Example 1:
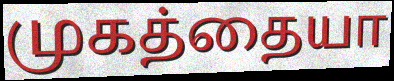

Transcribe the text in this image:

முகத்தையா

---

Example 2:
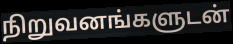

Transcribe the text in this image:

நிறுவனங்களுடன்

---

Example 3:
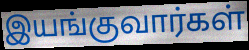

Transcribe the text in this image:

இயங்குவார்கள்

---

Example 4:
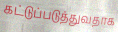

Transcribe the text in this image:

கட்டுப்படுத்துவதாக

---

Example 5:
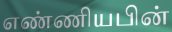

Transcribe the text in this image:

எண்ணியபின்